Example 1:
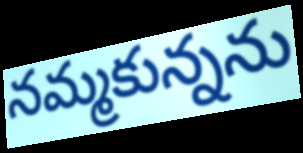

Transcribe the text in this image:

నమ్మకున్నను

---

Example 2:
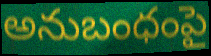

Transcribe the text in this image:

అనుబంధంపై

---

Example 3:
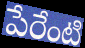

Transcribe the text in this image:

పేరేంటి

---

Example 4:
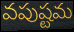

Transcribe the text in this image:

వపుష్టమ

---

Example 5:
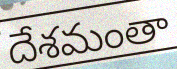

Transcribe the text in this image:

దేశమంతా